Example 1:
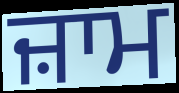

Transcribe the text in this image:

ਜ਼ਾਮ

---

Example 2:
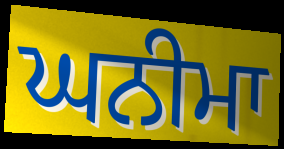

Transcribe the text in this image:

ਘਨੀਮਾ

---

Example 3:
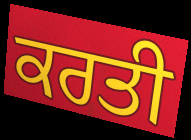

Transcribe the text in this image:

ਕਰਤੀ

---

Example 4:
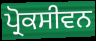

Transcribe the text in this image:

ਪ੍ਰੋਕਸੀਵਨ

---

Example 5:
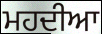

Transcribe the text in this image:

ਮਹਦੀਆ